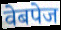
वेबपेज